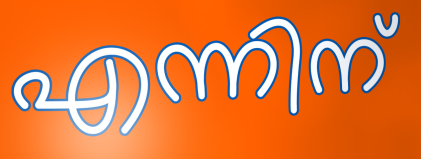
എന്നിന്